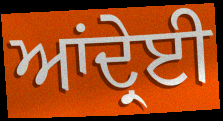
ਆਂਦ੍ਰੇਈ